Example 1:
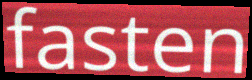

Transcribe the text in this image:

fasten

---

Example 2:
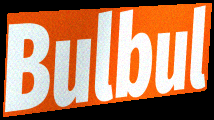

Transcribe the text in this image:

Bulbul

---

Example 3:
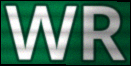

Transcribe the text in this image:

WR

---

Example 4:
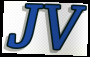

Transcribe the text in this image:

JV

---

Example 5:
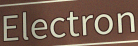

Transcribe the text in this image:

Electron